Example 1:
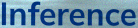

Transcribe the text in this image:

Inference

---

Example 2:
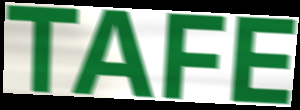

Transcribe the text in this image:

TAFE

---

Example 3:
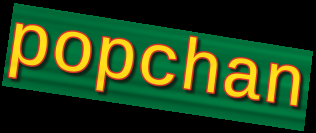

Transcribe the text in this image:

popchan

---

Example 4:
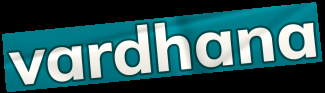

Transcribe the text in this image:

vardhana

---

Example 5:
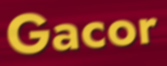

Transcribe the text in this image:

Gacor